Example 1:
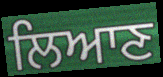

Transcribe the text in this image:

ਲਿਆਣ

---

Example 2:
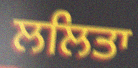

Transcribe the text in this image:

ਲਲਿਤਾ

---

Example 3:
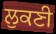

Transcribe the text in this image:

ਲੁਕਣੀ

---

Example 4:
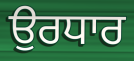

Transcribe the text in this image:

ਉਰਧਾਰ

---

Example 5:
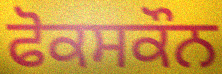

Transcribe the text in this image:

ਫੋਕਸਕੌਨ